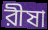
রীষা